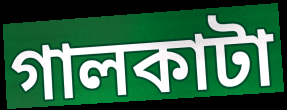
গালকাটা